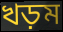
খড়ম